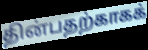
தின்பதற்காகக்